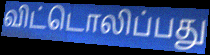
விட்டொலிப்பது